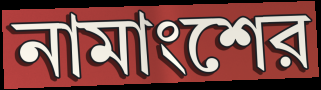
নামাংশের